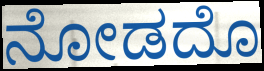
ನೋಡದೊ